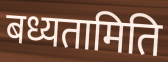
बध्यतामिति